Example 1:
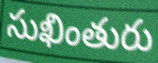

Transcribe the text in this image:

సుఖింతురు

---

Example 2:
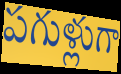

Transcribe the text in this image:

పగుళ్లుగా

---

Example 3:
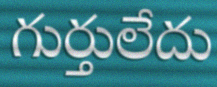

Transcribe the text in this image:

గుర్తులేదు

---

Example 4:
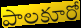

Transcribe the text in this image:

పాలకూరో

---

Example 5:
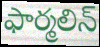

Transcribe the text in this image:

ఫార్మలిన్